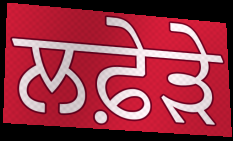
ਲਫ਼ੇੜੇ